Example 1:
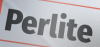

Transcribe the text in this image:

Perlite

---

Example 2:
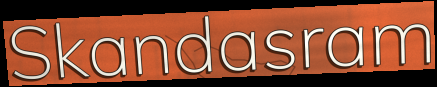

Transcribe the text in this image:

Skandasram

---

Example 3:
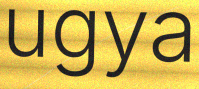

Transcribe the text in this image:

ugya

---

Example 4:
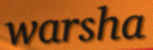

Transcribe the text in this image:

warsha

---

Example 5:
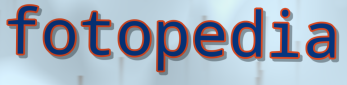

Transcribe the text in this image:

fotopedia